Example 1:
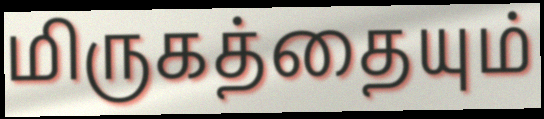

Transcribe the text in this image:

மிருகத்தையும்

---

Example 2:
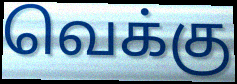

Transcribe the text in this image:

வெக்கு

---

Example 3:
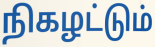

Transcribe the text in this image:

நிகழட்டும்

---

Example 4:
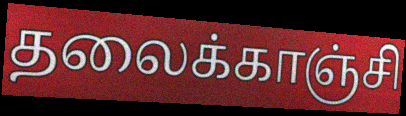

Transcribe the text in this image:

தலைக்காஞ்சி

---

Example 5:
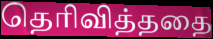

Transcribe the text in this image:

தெரிவித்ததை